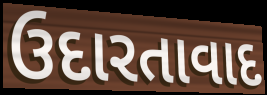
ઉદારતાવાદ